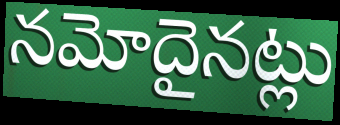
నమోదైనట్లు